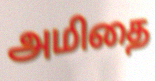
அமிதை